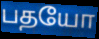
பதயோ